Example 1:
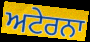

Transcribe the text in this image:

ਅਟੇਰਨਾ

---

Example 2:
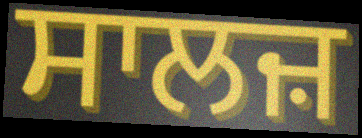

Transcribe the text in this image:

ਸਾਲਜ਼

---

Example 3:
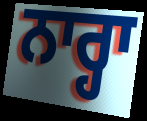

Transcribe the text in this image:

ਨਾਰ੍ਹਾ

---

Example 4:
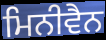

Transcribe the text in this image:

ਮਿਨੀਵੈਨ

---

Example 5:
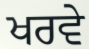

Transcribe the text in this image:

ਖਰਵੇ